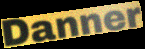
Danner